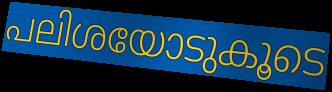
പലിശയോടുകൂടെ